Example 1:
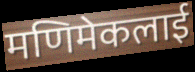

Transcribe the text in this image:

मणिमेकलाई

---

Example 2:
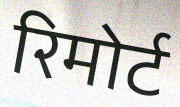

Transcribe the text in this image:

रिमोर्ट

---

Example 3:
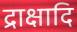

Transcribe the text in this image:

द्राक्षादि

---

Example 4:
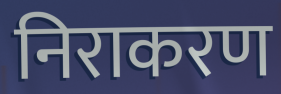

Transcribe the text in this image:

निराकरण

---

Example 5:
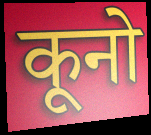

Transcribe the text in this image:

कूनो